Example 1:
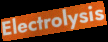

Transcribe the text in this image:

Electrolysis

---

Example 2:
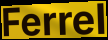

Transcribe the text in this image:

Ferrel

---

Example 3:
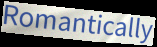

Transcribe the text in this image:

Romantically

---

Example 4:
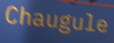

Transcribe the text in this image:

Chaugule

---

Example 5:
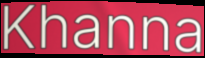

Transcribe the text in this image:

Khanna